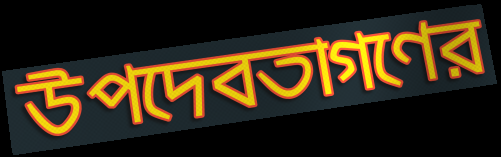
উপদেবতাগণের